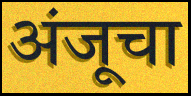
अंजूचा